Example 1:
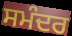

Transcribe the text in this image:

ਸਮੰਦਰ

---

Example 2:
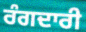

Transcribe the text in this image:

ਰੰਗਦਾਰੀ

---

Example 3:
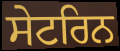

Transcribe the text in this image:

ਸੇਟਰਿਨ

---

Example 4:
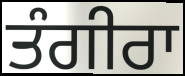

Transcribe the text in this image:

ਤੰਗੀਰਾ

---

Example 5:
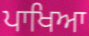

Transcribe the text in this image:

ਪਾਖਿਆ